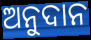
ଅନୁଦାନ